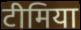
टीमिया